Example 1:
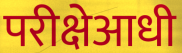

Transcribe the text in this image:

परीक्षेआधी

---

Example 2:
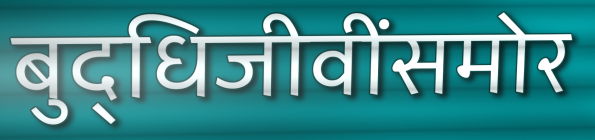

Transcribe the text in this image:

बुद्धिजीवींसमोर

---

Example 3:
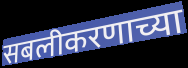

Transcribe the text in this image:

सबलीकरणाच्या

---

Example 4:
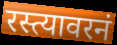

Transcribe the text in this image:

रस्त्यावरनं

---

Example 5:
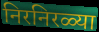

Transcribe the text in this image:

निरनिरळ्या